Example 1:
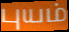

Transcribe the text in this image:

புயம்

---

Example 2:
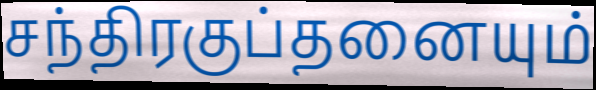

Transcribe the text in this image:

சந்திரகுப்தனையும்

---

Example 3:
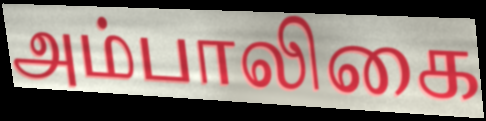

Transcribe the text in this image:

அம்பாலிகை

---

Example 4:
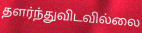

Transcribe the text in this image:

தளர்ந்துவிடவில்லை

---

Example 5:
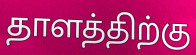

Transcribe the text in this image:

தாளத்திற்கு